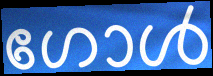
ഗോൾ